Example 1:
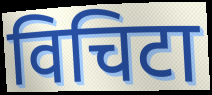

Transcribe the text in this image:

विचिटा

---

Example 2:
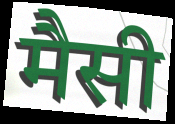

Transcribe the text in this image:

मैसी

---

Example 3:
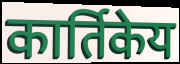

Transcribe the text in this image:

कार्तिकेय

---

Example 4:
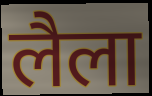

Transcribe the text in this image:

लैला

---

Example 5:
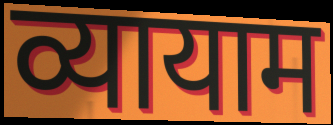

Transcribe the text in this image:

व्यायाम